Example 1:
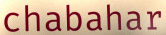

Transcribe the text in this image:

chabahar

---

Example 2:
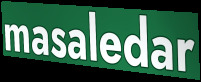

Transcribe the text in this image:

masaledar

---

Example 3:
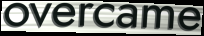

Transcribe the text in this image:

overcame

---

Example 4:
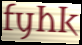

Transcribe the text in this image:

fyhk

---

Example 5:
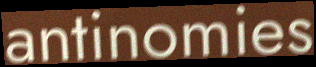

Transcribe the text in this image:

antinomies